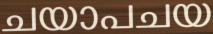
ചയാപചയ